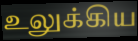
உலுக்கிய